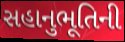
સહાનુભૂતિની